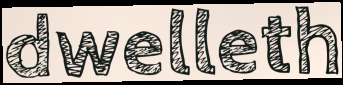
dwelleth